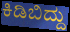
ಕಿಡಿಬಿದ್ದು